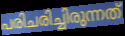
പരിചരിച്ചിരുന്നത്